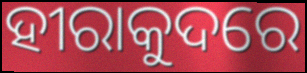
ହୀରାକୁଦରେ